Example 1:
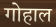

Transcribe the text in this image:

गोहाल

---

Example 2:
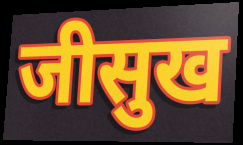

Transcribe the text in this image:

जीसुख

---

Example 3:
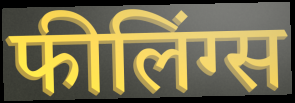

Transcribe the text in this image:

फीलिंग्स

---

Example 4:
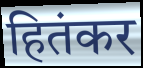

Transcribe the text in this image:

हितंकर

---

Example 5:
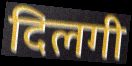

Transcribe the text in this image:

दिलगी